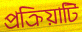
প্রক্রিয়াটি